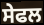
ਸੇਫਲ